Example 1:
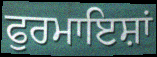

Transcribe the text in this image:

ਫੁਰਮਾਇਸ਼ਾਂ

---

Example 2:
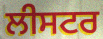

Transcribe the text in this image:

ਲੀਸਟਰ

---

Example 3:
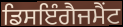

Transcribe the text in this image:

ਡਿਸਇੰਗੈਜਮੈਂਟ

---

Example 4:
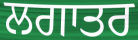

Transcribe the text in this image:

ਲਗਾਤਰ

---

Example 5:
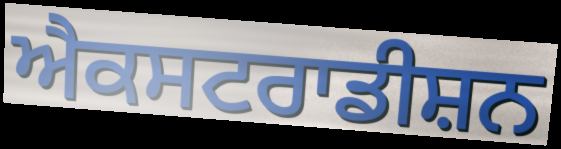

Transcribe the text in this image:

ਐਕਸਟਰਾਡੀਸ਼ਨ